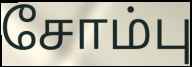
சோம்பு